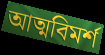
আত্মবিমর্শ